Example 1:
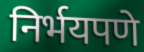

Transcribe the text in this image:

निर्भयपणे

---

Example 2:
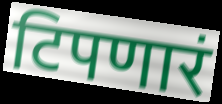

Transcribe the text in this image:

टिपणारं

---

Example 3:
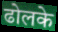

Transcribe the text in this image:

ढोलके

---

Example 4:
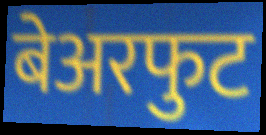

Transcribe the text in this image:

बेअरफुट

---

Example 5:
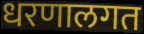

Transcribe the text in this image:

धरणालगत